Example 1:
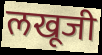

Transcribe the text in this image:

लखूजी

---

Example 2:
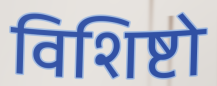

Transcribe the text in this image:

विशिष्टो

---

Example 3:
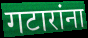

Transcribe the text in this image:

गटारांना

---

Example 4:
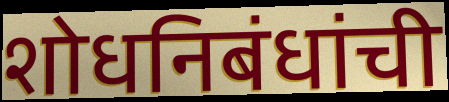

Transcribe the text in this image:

शोधनिबंधांची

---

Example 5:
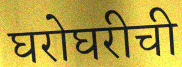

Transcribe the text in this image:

घरोघरीची